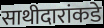
साथीदारांकडे